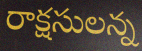
రాక్షసులన్న